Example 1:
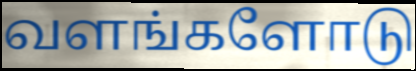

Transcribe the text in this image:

வளங்களோடு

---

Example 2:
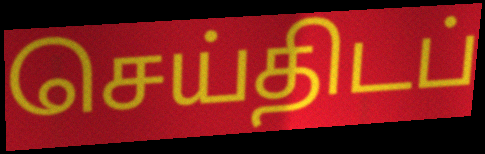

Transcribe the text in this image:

செய்திடப்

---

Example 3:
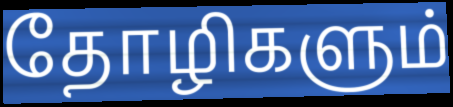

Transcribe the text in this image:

தோழிகளும்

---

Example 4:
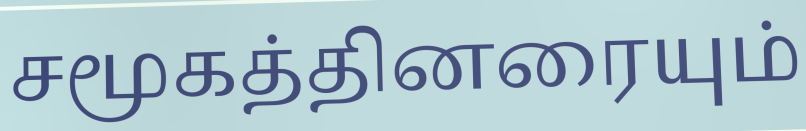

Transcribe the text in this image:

சமூகத்தினரையும்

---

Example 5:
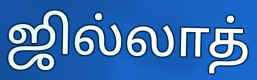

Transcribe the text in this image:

ஜில்லாத்